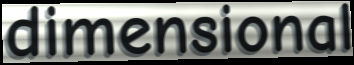
dimensional